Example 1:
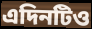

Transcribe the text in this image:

এদিনটিও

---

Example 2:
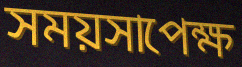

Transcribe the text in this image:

সময়সাপেক্ষ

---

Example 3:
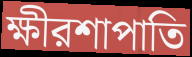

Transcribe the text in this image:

ক্ষীরশাপাতি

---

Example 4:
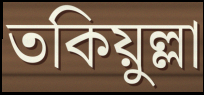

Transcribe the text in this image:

তকিয়ুল্লা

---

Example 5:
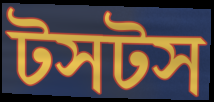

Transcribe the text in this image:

টসটস